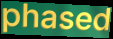
phased